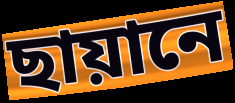
ছায়ানে